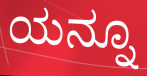
ಯನ್ನೂ